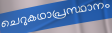
ചെറുകഥാപ്രസ്ഥാനം